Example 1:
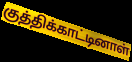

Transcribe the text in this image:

குத்திக்காட்டினாள்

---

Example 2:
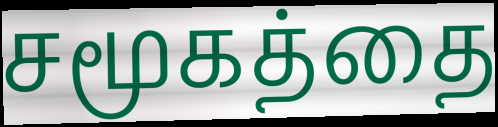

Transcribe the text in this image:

சமூகத்தை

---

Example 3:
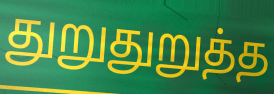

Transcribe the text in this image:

துறுதுறுத்த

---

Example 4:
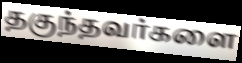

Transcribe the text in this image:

தகுந்தவர்களை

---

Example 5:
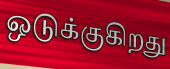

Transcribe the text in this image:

ஒடுக்குகிறது